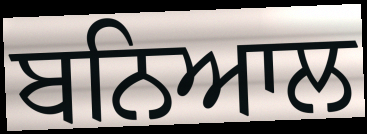
ਬਨਿਆਲ